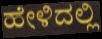
ಹೇಳಿದಲ್ಲಿ